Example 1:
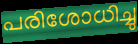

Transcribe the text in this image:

പരിശോധിച്ചു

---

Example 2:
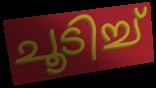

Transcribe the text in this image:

ചൂടിച്ച്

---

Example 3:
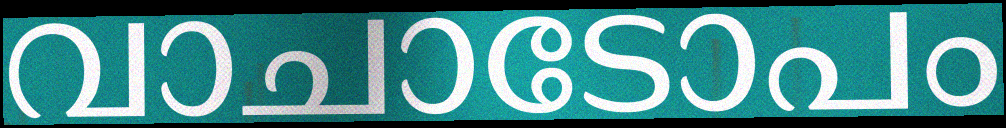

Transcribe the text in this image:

വാചാടോപം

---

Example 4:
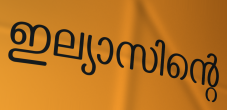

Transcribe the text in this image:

ഇല്യാസിന്റെ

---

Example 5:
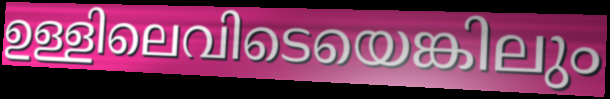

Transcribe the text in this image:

ഉള്ളിലെവിടെയെങ്കിലും